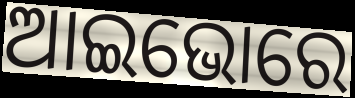
ଆଇଭୋରେ